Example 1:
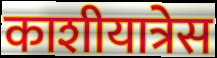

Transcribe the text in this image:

काशीयात्रेस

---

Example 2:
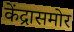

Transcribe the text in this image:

केंद्रासमोर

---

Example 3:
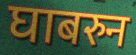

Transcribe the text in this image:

घाबरुन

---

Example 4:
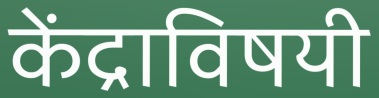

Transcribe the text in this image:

केंद्राविषयी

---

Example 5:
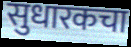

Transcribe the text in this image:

सुधारकचा